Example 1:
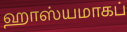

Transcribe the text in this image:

ஹாஸ்யமாகப்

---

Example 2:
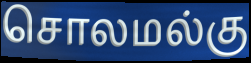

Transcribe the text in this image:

சொலமல்கு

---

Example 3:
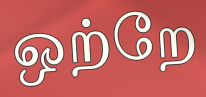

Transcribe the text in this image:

ஒற்றே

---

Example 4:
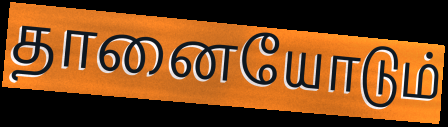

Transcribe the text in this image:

தானையோடும்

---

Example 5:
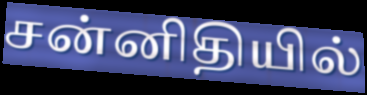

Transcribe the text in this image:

சன்னிதியில்